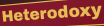
Heterodoxy